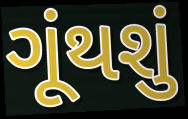
ગૂંથશું